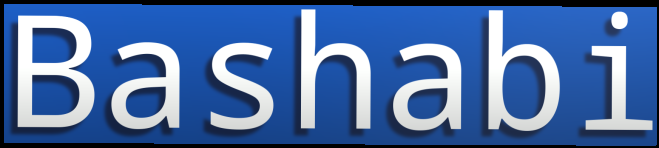
Bashabi